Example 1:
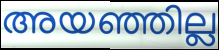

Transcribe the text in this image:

അയഞ്ഞില്ല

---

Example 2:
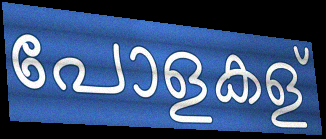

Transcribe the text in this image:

പോളകള്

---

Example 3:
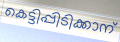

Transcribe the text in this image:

കെട്ടിപ്പിടിക്കാന്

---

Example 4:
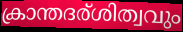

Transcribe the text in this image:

ക്രാന്തദര്ശിത്വവും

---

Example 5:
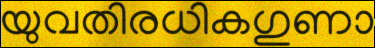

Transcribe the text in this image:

യുവതിരധികഗുണാ